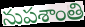
నుపశాంతి